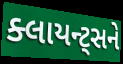
ક્લાયન્ટ્સને